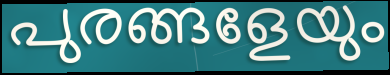
പുരങ്ങളേയും